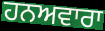
ਹਨਅਵਾਰਾ